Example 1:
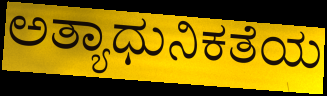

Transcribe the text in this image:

ಅತ್ಯಾಧುನಿಕತೆಯ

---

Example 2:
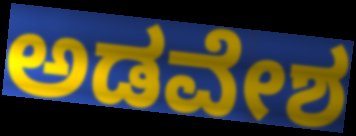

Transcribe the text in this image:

ಅಡವೇಶ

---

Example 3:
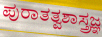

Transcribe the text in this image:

ಪುರಾತತ್ವಶಾಸ್ತ್ರಜ್ಞ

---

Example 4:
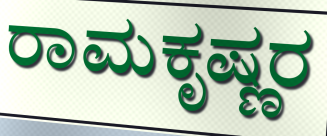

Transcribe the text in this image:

ರಾಮಕೃಷ್ಣರ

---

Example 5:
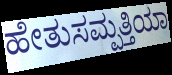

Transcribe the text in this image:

ಹೇತುಸಮ್ಪತ್ತಿಯಾ